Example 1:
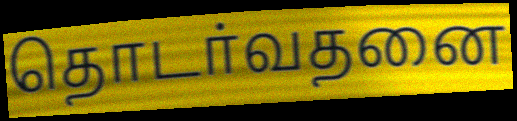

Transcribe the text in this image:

தொடர்வதனை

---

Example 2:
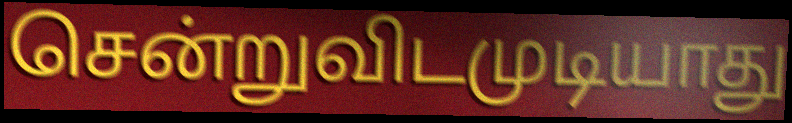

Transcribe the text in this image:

சென்றுவிடமுடியாது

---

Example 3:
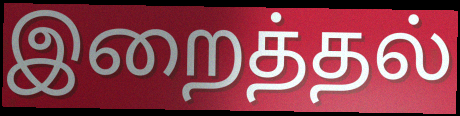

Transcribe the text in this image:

இறைத்தல்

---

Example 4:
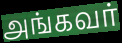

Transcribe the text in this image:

அங்கவர்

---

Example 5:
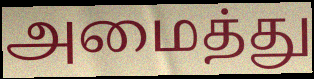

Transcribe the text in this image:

அமைத்து